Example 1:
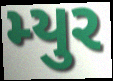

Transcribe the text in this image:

મ્યુર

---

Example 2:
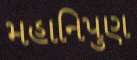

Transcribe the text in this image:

મહાનિપુણ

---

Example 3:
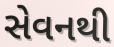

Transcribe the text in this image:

સેવનથી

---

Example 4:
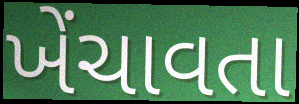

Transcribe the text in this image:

ખેંચાવતા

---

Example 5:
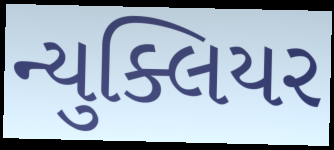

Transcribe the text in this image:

ન્યુક્લિયર